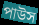
পাউস